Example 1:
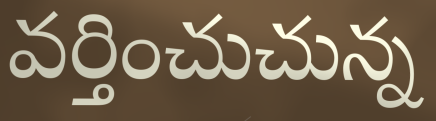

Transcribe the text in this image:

వర్తించుచున్న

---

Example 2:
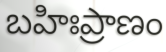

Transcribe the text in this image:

బహిఃప్రాణం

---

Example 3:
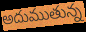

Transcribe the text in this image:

అదుముతున్న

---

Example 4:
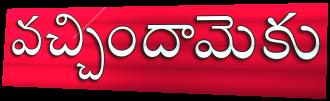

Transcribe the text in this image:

వచ్చిందామెకు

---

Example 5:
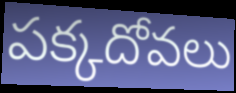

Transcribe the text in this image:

పక్కదోవలు